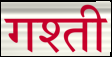
गश्ती